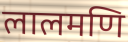
लालमणि